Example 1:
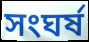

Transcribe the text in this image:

সংঘর্ষ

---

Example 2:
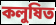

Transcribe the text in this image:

কলুষিত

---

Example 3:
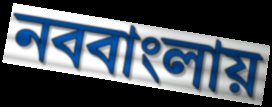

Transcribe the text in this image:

নববাংলায়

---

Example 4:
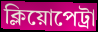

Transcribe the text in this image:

ক্লিয়োপেট্রা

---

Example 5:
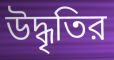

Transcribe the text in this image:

উদ্ধৃতির